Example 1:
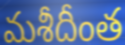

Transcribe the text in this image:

మశీదీంత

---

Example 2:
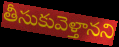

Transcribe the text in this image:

తీసుకువెళ్తానని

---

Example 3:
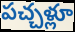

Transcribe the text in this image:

పచ్చళ్లూ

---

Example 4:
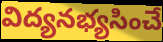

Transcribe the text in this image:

విద్యనభ్యసించే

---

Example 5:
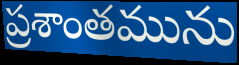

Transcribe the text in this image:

ప్రశాంతమును